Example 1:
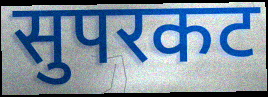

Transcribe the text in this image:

सुपरकट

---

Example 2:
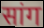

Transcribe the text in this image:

सांग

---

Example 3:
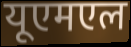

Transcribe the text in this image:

यूएमएल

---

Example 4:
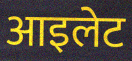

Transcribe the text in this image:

आइलेट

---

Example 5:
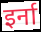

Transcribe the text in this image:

इर्ना